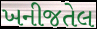
ખનીજતેલ